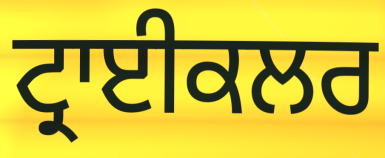
ਟ੍ਰਾਈਕਲਰ